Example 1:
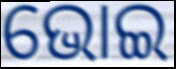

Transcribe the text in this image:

ଭୋଇ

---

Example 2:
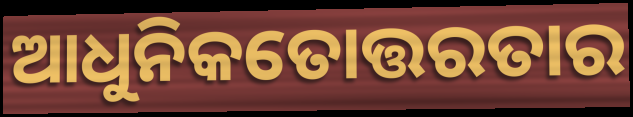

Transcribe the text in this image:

ଆଧୁନିକତୋତ୍ତରତାର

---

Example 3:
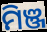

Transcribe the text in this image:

ମିଞ୍ଜ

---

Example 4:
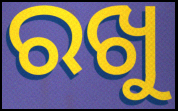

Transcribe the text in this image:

ରଖୁ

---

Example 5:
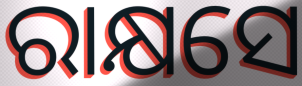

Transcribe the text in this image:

ରାକ୍ଷସେ